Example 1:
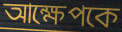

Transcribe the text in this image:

আক্ষেপকে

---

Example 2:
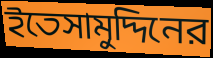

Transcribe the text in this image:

ইতেসামুদ্দিনের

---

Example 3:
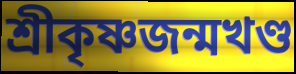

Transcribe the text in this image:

শ্রীকৃষ্ণজন্মখণ্ড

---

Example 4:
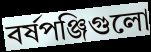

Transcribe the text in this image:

বর্ষপঞ্জিগুলো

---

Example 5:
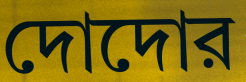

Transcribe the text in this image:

দোদোর